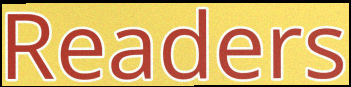
Readers